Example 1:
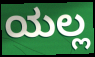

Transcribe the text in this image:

ಯಲ್ಲ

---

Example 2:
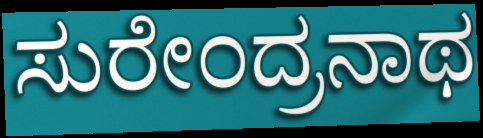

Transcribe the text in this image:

ಸುರೇಂದ್ರನಾಥ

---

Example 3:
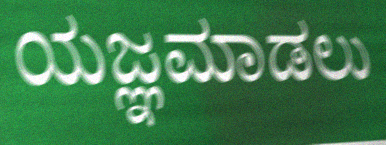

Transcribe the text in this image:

ಯಜ್ಞಮಾಡಲು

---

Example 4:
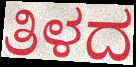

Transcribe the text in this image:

ತಿಳದ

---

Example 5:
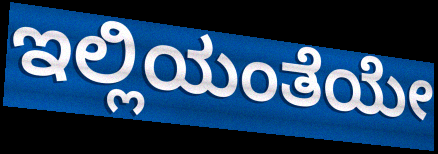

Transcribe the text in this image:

ಇಲ್ಲಿಯಂತೆಯೇ